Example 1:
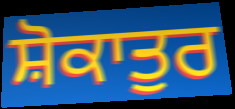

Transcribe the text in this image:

ਸ਼ੋਕਾਤੁਰ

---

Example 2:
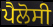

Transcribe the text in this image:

ਪੈਲੋਸੀ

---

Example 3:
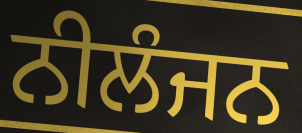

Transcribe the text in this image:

ਨੀਲੰਜਨ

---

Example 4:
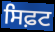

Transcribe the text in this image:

ਸਿਫ਼ਟ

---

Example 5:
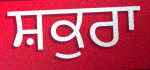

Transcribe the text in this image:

ਸ਼ਕੁਰਾ